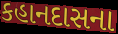
કહાનદાસના